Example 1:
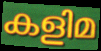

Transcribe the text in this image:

കളിമ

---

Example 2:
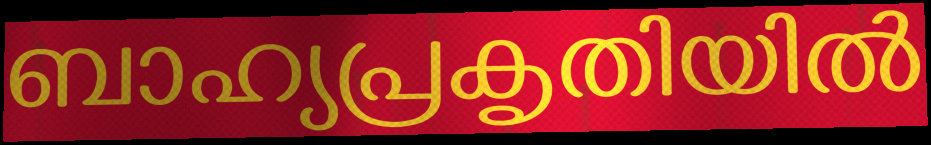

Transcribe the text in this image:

ബാഹ്യപ്രകൃതിയിൽ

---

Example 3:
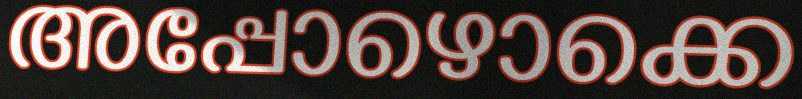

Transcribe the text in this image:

അപ്പോഴൊക്കെ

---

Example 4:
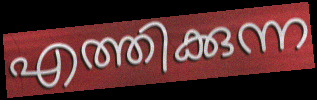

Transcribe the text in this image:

എത്തിക്കുന്ന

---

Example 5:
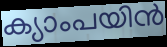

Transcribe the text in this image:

ക്യാംപയിൻ